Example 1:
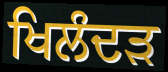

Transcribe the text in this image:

ਖਿਲੰਦੜ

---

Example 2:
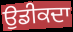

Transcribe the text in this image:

ਉਡੀਕਦਾ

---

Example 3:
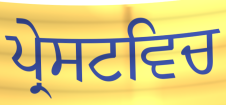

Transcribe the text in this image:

ਪ੍ਰੇਸਟਵਿਚ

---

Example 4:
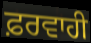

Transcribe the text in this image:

ਫ਼ਰਵਾਹੀ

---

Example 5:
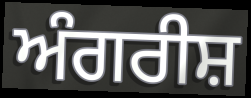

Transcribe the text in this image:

ਅੰਗਰੀਸ਼